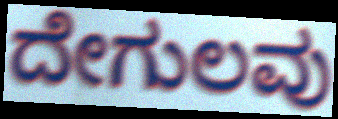
ದೇಗುಲವು